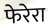
फेरेरा